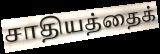
சாதியத்தைக்